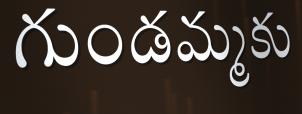
గుండమ్మకు